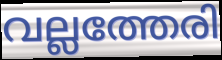
വല്ലത്തേരി